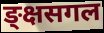
ङ्क्षसगल